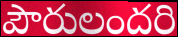
పౌరులందరి